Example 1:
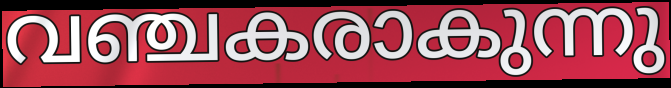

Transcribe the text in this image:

വഞ്ചകരാകുന്നു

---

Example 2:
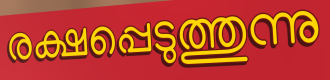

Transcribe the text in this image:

രക്ഷപ്പെടുത്തുന്നു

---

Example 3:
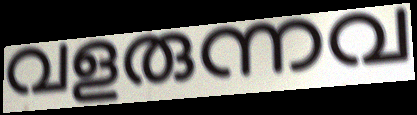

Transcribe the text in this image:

വളരുന്നവ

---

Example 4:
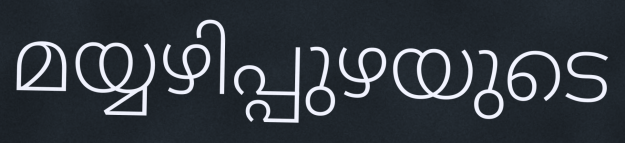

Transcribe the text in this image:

മയ്യഴിപ്പുഴയുടെ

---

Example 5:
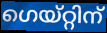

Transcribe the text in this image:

ഗെയ്റ്റിന്